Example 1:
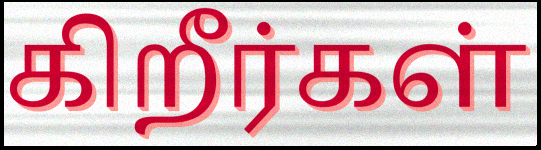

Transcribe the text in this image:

கிறீர்கள்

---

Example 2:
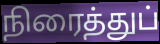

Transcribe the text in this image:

நிரைத்துப்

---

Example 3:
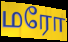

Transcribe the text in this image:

மரோ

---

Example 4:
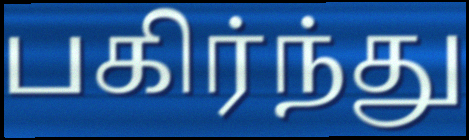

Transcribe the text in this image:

பகிர்ந்து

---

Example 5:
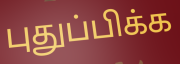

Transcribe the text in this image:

புதுப்பிக்க